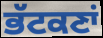
ਭੱਟਕਣਾਂ